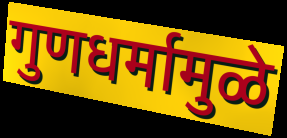
गुणधर्मामुळे